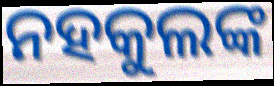
ନହକୁଲଙ୍କ